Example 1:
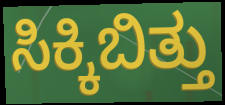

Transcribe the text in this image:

ಸಿಕ್ಕಿಬಿತ್ತು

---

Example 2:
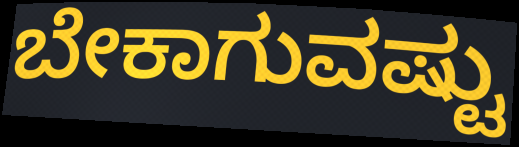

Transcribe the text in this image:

ಬೇಕಾಗುವಷ್ಟು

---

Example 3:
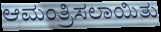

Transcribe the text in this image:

ಆಮಂತ್ರಿಸಲಾಯಿತು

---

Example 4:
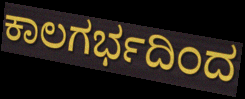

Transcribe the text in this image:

ಕಾಲಗರ್ಭದಿಂದ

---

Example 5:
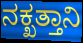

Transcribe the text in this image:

ನಕ್ಖತ್ತಾನಿ